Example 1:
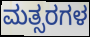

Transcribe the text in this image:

ಮತ್ಸರಗಳ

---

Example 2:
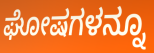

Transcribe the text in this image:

ಘೋಷಗಳನ್ನೂ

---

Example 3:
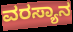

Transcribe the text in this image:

ವರಸ್ಯಾನ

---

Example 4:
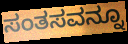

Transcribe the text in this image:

ಸಂತಸವನ್ನೂ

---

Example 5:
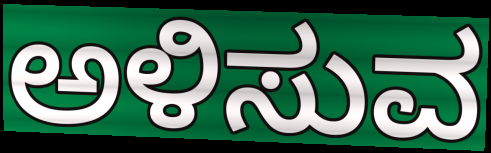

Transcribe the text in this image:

ಅಳಿಸುವ